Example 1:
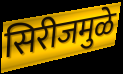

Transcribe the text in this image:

सिरीजमुळे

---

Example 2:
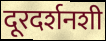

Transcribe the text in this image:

दूरदर्शनशी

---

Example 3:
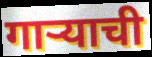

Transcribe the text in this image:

गाऱ्याची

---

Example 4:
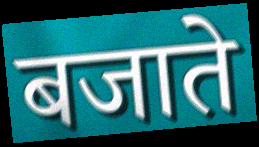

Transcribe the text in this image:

बजाते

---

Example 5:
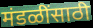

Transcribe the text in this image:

मंडळींसाठी